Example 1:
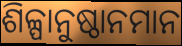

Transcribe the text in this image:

ଶିଳ୍ପାନୁଷ୍ଠାନମାନ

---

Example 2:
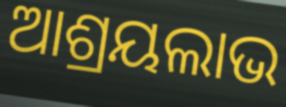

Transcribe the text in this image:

ଆଶ୍ରୟଲାଭ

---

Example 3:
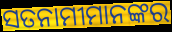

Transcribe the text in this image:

ସତନାମୀମାନଙ୍କର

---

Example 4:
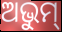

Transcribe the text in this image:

ଅଭୁମ୍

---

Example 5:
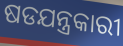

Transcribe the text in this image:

ଷଡଯନ୍ତ୍ରକାରୀ